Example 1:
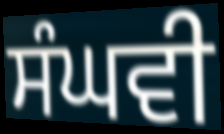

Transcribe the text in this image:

ਸੰਘਵੀ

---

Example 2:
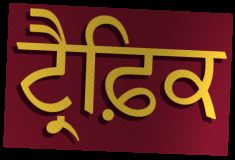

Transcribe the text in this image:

ਟ੍ਰੈਫ਼ਿਕ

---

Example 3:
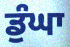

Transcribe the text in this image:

ਡੁੰਘਾ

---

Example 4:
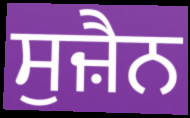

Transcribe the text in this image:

ਸੁਜ਼ੈਨ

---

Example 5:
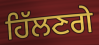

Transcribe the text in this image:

ਹਿੱਲਣਗੇ